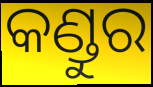
କଣ୍ଡୁର